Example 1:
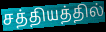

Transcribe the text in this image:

சத்தியத்தில்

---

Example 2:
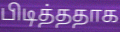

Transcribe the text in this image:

பிடித்ததாக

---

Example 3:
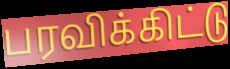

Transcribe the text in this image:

பரவிக்கிட்டு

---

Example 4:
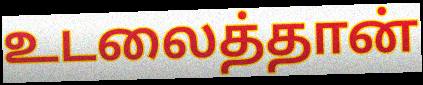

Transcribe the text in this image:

உடலைத்தான்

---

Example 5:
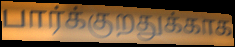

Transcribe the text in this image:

பார்க்குறதுக்காக